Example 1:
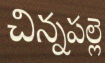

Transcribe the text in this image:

చిన్నపల్లె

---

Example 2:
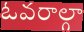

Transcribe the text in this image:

ఓవరాల్గా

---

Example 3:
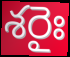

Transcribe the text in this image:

శరైః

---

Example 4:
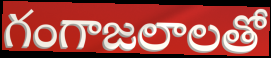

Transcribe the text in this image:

గంగాజలాలతో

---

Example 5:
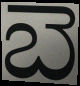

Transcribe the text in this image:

బె